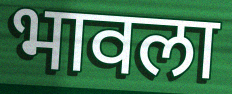
भावला